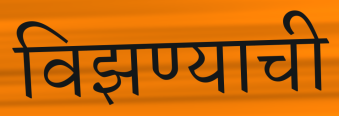
विझण्याची